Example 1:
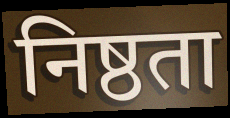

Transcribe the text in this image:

निष्ठता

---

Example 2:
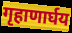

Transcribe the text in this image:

गृहाणार्घय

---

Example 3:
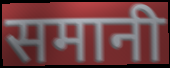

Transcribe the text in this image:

समानी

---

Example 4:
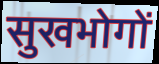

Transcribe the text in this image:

सुखभोगों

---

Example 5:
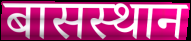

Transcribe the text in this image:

बासस्थान